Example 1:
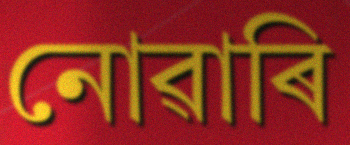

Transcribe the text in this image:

নোৱাৰি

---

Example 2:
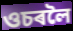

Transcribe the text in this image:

ওচৰলৈ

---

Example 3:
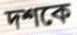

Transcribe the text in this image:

দশকে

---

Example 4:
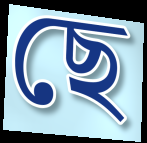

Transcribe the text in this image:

ছে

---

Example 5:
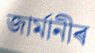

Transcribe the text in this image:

জাৰ্মানীৰ